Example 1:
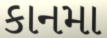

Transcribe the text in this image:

કાનમા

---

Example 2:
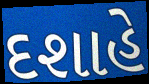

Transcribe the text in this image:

દશાહે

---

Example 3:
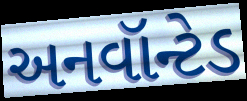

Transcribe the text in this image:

અનવૉન્ટેડ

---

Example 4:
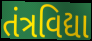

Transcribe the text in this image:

તંત્રવિદ્યા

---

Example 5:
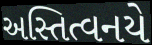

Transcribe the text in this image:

અસ્તિત્વનયે